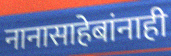
नानासाहेबांनाही